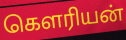
கௌரியன்